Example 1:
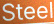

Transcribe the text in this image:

Steel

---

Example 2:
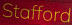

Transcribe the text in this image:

Stafford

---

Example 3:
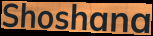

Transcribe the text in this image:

Shoshana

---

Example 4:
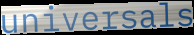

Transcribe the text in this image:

universals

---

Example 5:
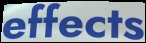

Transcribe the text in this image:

effects